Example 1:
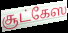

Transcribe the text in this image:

சூட்கேஸ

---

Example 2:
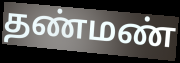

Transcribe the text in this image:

தண்மண்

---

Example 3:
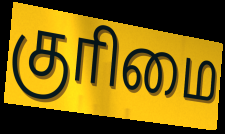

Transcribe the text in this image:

குரிமை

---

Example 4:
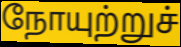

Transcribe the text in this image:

நோயுற்றுச்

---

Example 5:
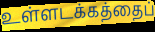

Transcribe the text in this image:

உள்ளடக்கத்தைப்